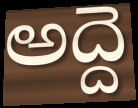
అద్దె